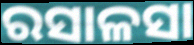
ରସାଳସା